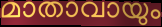
മാതാവായും